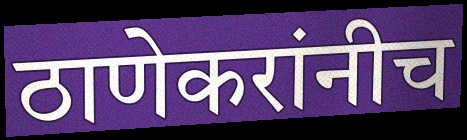
ठाणेकरांनीच